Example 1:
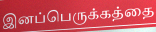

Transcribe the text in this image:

இனப்பெருக்கத்தை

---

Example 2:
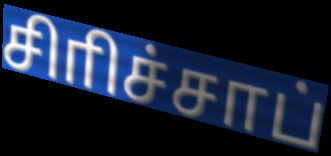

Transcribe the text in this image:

சிரிச்சாப்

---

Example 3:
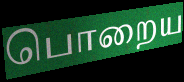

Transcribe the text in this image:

பொறைய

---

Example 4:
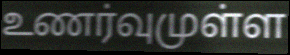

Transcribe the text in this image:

உணர்வுமுள்ள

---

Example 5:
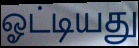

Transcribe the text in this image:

ஓட்டியது